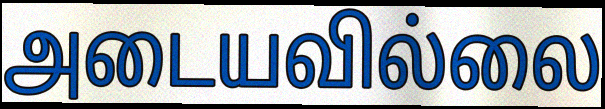
அடையவில்லை